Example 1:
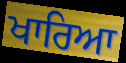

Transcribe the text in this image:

ਖਾਰਿਆ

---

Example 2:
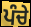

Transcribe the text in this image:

ਪੰਚੇ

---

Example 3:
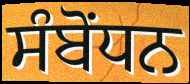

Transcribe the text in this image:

ਸੰਬੋੰਧਨ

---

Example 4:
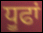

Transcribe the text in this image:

ਧੂਫਾਂ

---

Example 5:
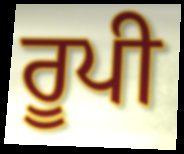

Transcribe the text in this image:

ਰੂਪੀ